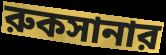
রুকসানার